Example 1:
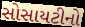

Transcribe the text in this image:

સોસાયટીનો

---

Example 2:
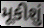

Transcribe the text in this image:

મૂકીશું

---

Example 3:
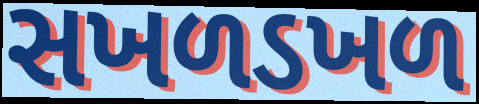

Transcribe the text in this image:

સખળડખળ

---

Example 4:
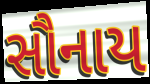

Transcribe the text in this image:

સૌનાય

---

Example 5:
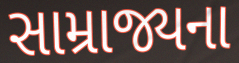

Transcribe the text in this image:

સામ્રાજ્યના